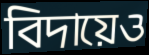
বিদায়েও